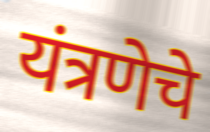
यंत्रणेचे